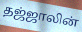
தஜ்ஜாலின்